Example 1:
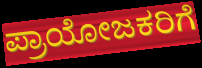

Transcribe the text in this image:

ಪ್ರಾಯೋಜಕರಿಗೆ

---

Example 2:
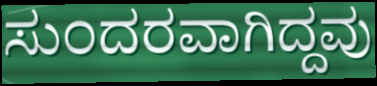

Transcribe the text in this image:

ಸುಂದರವಾಗಿದ್ದವು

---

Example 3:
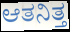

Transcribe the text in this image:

ಆತನಿತ್ತ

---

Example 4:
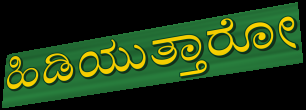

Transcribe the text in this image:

ಹಿಡಿಯುತ್ತಾರೋ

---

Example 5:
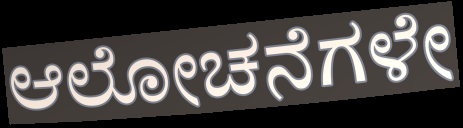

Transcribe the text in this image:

ಆಲೋಚನೆಗಳೇ